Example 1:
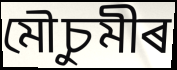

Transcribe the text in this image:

মৌচুমীৰ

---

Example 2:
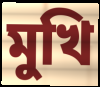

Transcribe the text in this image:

মুখি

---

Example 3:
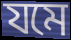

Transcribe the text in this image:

যমে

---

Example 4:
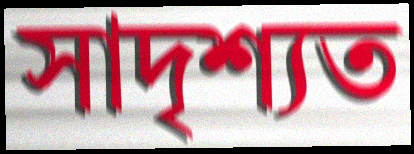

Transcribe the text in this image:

সাদৃশ্যত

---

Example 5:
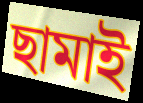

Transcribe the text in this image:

ছামাই